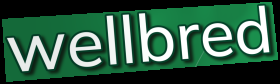
wellbred